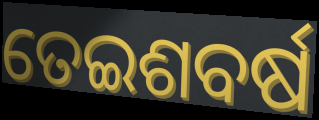
ତେଇଶବର୍ଷ